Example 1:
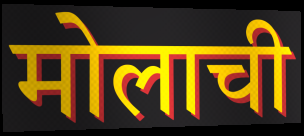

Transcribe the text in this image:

मोलाची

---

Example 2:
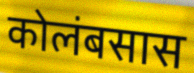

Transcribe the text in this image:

कोलंबसास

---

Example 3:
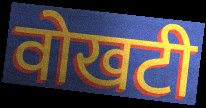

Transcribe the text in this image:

वोखटी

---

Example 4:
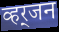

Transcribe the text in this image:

व्हर्जन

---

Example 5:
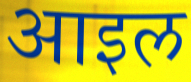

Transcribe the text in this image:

आइल